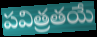
పవిత్రతయే